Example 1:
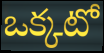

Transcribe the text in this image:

ఒక్కటో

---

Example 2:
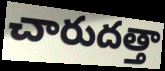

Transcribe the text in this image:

చారుదత్తా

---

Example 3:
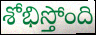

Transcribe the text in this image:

శోభిస్తోంది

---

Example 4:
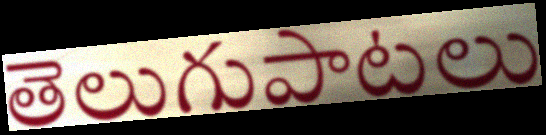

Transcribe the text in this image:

తెలుగుపాటలు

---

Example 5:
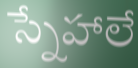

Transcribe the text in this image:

స్నేహాలే